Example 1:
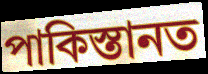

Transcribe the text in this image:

পাকিস্তানত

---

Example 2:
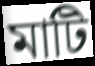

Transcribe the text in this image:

মাটি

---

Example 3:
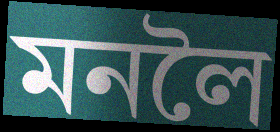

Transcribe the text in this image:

মনলৈ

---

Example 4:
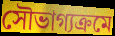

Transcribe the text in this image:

সৌভাগ্যক্ৰমে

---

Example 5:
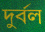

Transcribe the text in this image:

দুৰ্বল